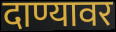
दाण्यावर